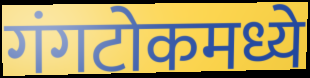
गंगटोकमध्ये